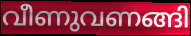
വീണുവണങ്ങി